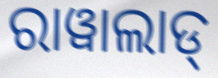
ରାୱାଲାଡ୍